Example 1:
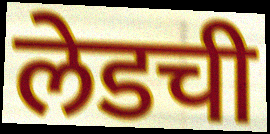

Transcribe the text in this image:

लेडची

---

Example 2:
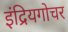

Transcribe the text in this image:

इंद्रियगोचर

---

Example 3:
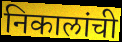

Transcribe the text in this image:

निकालांची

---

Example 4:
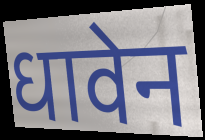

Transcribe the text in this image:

धावेन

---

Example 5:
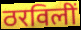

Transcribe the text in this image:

ठरविलीं